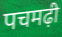
पचमढ़ी